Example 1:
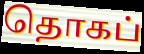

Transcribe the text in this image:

தொகப்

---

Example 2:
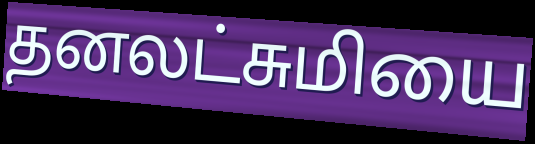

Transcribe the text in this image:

தனலட்சுமியை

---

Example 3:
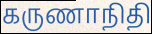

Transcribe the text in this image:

கருணாநிதி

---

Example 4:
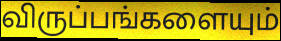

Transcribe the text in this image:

விருப்பங்களையும்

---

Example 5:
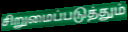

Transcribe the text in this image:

சிறுமைப்படுத்தும்